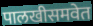
पालखीसमवेत